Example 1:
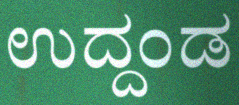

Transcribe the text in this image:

ಉದ್ದಂಡ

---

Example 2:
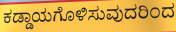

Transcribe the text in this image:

ಕಡ್ಡಾಯಗೊಳಿಸುವುದರಿಂದ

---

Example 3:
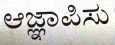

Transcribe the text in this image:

ಆಜ್ಞಾಪಿಸು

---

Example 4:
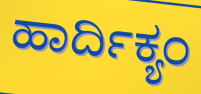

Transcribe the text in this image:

ಹಾರ್ದಿಕ್ಯಂ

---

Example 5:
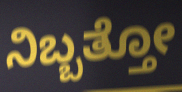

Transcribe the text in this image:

ನಿಬ್ಬತ್ತೋ